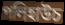
পলিহাউচ